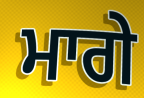
ਮਾਗੇ